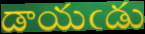
డాయఁడు